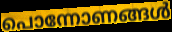
പൊന്നോണങ്ങൾ